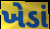
ખેડાં